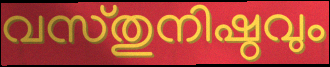
വസ്തുനിഷ്ഠവും